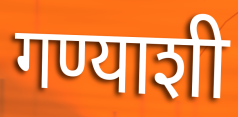
गण्याशी